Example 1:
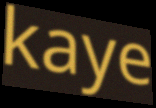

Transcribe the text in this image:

kaye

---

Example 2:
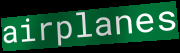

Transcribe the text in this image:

airplanes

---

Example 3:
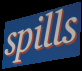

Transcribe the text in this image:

spills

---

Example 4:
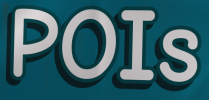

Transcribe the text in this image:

POIs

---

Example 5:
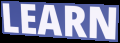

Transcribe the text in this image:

LEARN